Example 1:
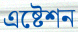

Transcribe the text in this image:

এষ্টেশন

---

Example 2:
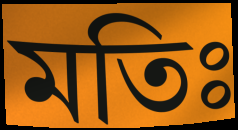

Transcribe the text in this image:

মতিঃ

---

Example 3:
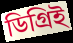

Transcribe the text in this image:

ডিগ্রিই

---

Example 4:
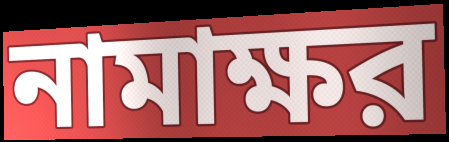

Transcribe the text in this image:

নামাক্ষর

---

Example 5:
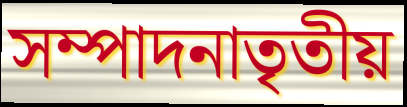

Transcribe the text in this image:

সম্পাদনাতৃতীয়